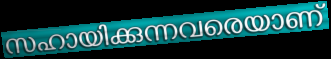
സഹായിക്കുന്നവരെയാണ്